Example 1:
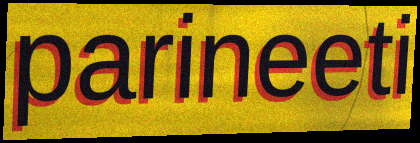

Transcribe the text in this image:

parineeti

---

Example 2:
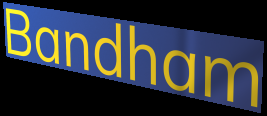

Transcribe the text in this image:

Bandham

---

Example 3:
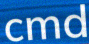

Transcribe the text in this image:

cmd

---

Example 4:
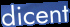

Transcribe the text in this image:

dicent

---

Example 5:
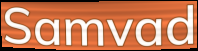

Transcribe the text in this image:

Samvad